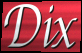
Dix